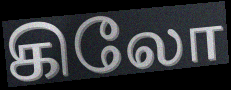
கிலோ